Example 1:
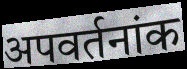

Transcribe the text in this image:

अपवर्तनांक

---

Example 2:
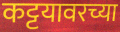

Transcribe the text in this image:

कट्टयावरच्या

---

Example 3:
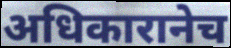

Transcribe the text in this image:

अधिकारानेच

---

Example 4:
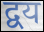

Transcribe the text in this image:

द्वय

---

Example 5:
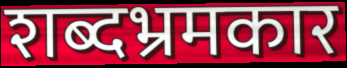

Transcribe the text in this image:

शब्दभ्रमकार